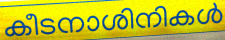
കീടനാശിനികൾ